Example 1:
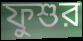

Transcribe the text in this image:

ফুশুর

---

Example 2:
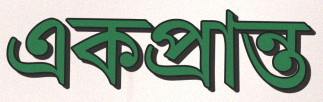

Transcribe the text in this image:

একপ্রান্ত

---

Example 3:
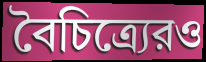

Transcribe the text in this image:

বৈচিত্র্যেরও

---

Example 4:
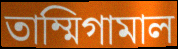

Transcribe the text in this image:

তাম্মিগামাল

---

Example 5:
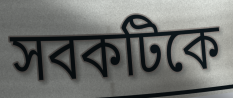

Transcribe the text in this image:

সবকটিকে